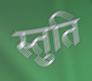
स्तुति